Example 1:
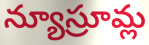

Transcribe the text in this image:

న్యూస్రూమ్ల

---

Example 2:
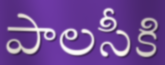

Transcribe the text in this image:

పాలసీకి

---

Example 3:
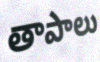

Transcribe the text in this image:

తాపాలు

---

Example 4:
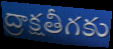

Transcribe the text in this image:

ద్రాక్షతీగకు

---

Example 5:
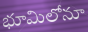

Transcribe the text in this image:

భూమిలోనూ